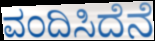
ವಂದಿಸಿದೆನೆ